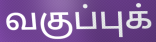
வகுப்புக்